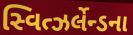
સ્વિત્ઝર્લેન્ડના